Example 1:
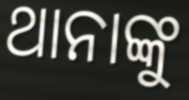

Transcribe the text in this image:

ଥାନାଙ୍କୁ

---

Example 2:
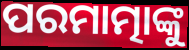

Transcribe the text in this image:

ପରମାତ୍ମାଙ୍କୁ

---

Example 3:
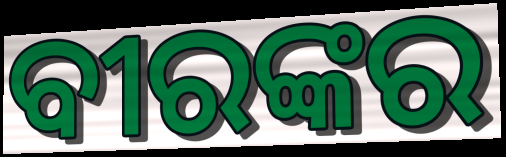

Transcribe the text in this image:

ବୀରଙ୍କର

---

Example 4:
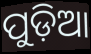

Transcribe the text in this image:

ପୁଡ଼ିଆ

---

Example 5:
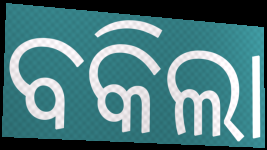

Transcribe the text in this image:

ବକିଲା